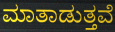
ಮಾತಾಡುತ್ತವೆ